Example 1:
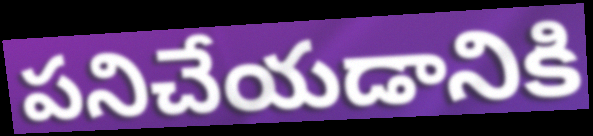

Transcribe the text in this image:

పనిచేయడానికి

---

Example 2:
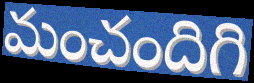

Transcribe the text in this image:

మంచందిగి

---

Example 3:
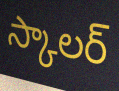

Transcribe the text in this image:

స్కాలర్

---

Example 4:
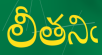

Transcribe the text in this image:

లీతనిఁ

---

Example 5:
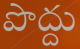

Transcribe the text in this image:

పొద్దు